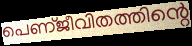
പെണ്ജീവിതത്തിന്റെ